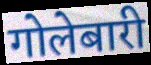
गोलेबारी